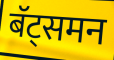
बॅट्समन